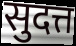
सुदत्त